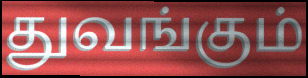
துவங்கும்